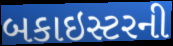
બકાઇસ્ટરની